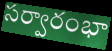
సర్వారంభా